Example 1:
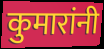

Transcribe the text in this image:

कुमारांनी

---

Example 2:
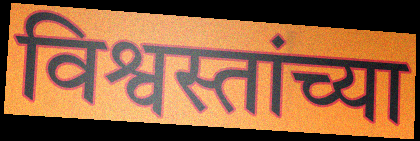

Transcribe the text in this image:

विश्वस्तांच्या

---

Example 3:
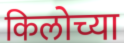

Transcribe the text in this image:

किलोच्या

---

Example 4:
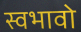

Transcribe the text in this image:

स्वभावो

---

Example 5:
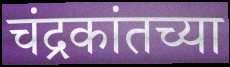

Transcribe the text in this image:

चंद्रकांतच्या